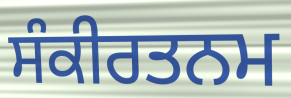
ਸੰਕੀਰਤਨਮ